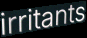
irritants